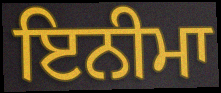
ਇਨੀਮਾ